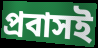
প্রবাসই